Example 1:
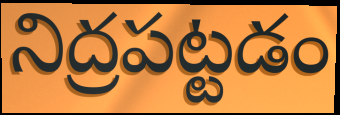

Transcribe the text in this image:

నిద్రపట్టడం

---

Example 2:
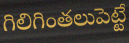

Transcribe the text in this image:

గిలిగింతలుపెట్టే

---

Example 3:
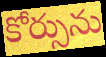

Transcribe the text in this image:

కోర్సును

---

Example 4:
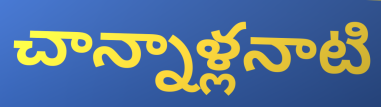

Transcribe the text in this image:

చాన్నాళ్లనాటి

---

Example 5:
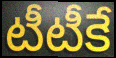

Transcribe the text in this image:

టీటీకే